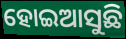
ହୋଇଆସୁଛି